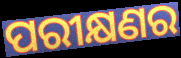
ପରୀକ୍ଷଣର